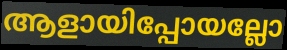
ആളായിപ്പോയല്ലോ